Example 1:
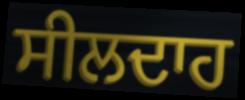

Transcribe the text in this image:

ਸੀਲਦਾਹ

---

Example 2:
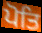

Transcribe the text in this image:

ਪੋਤਿ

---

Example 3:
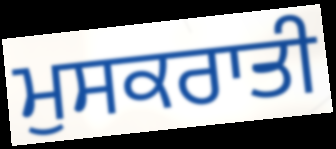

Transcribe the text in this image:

ਮੁਸਕਰਾਤੀ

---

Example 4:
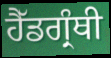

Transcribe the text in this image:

ਹੈੱਡਗ੍ਰੰਥੀ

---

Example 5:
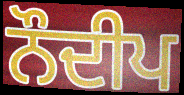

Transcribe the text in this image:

ਨੌਦੀਪ